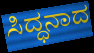
ಸಿದ್ಧನಾದ